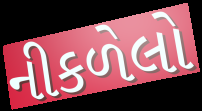
નીકળેલો